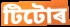
টিটোৰ